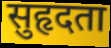
सुहृदता